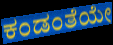
ಕಂಡಂತೆಯೇ